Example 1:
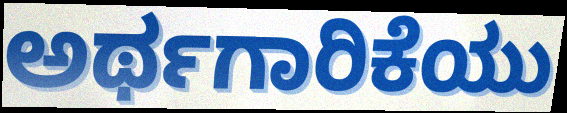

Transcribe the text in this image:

ಅರ್ಥಗಾರಿಕೆಯು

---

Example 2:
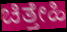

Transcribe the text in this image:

ಚಿತ್ತೇಹಿ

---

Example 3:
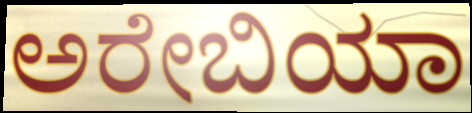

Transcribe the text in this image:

ಅರೇಬಿಯಾ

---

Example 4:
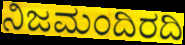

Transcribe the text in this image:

ನಿಜಮಂದಿರದಿ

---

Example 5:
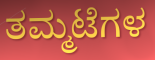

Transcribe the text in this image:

ತಮ್ಮಟೆಗಳ